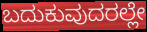
ಬದುಕುವುದರಲ್ಲೇ